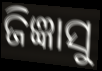
ଜିଜ୍ଞାସୁ